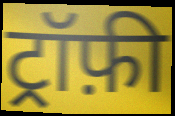
ट्रॉफ़ी